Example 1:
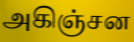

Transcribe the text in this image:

அகிஞ்சன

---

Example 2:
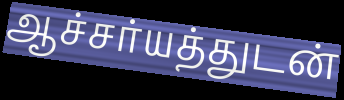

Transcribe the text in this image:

ஆச்சர்யத்துடன்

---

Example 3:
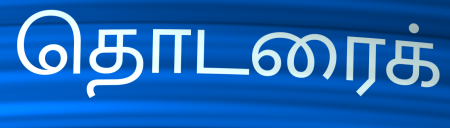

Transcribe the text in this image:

தொடரைக்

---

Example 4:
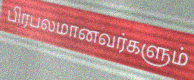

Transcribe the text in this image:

பிரபலமானவர்களும்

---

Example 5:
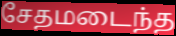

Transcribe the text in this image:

சேதமடைந்த